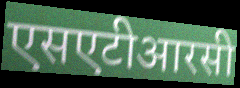
एसएटीआरसी